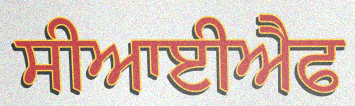
ਸੀਆਈਐਫ